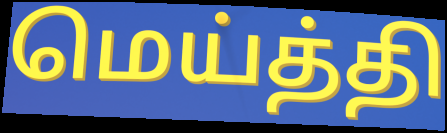
மெய்த்தி